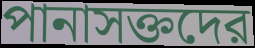
পানাসক্তদের